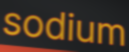
sodium